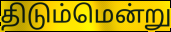
திடும்மென்று